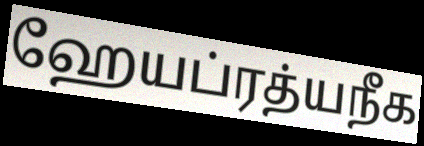
ஹேயப்ரத்யநீக